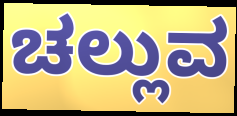
ಚಲ್ಲುವ